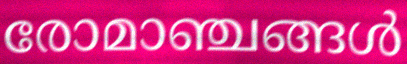
രോമാഞ്ചങ്ങൾ